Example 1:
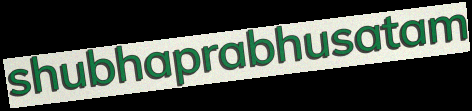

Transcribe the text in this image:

shubhaprabhusatam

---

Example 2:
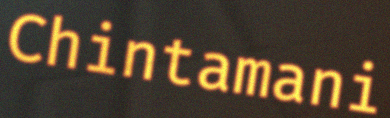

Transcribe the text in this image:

Chintamani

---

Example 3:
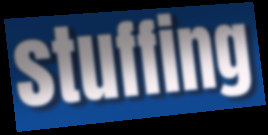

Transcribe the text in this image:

stuffing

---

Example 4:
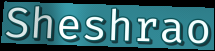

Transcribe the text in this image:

Sheshrao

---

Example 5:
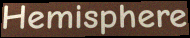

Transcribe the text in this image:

Hemisphere